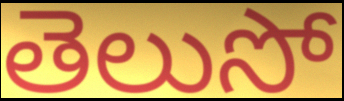
తెలుసో